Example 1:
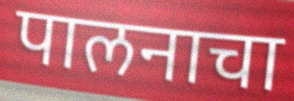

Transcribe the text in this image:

पालनाचा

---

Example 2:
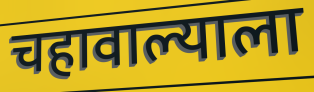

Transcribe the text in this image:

चहावाल्याला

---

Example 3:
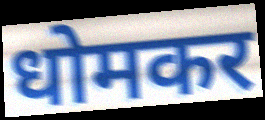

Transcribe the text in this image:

धोमकर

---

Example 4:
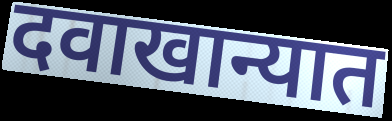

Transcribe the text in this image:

दवाखान्यात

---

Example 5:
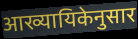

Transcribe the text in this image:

आख्यायिकेनुसार